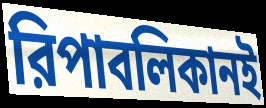
রিপাবলিকানই